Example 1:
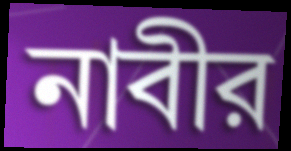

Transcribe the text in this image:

নাবীর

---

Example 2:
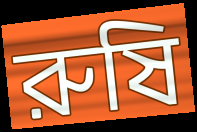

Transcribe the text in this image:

রুষি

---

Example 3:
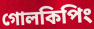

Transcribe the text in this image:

গোলকিপিং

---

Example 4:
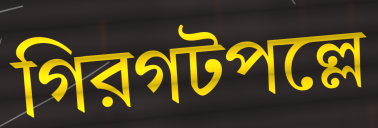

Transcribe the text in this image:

গিরগটপল্লে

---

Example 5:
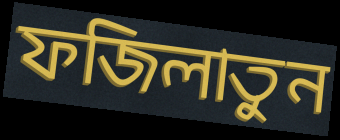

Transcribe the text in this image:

ফজিলাতুন